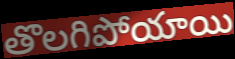
తొలగిపోయాయి